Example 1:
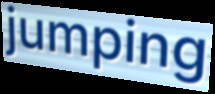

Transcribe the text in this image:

jumping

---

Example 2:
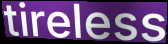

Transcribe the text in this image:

tireless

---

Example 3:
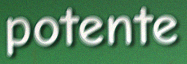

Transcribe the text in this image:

potente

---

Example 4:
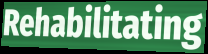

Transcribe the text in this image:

Rehabilitating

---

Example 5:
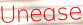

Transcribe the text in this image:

Unease